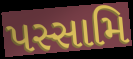
પસ્સામિ